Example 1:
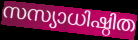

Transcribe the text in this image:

സസ്യാധിഷ്ഠിത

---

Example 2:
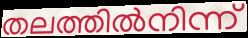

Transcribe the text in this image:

തലത്തിൽനിന്ന്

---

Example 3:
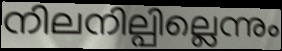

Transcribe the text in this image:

നിലനില്പില്ലെന്നും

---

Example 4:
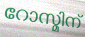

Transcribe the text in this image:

റോസ്മിന്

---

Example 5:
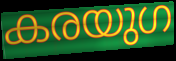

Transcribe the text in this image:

കരയുഗ